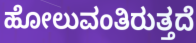
ಹೋಲುವಂತಿರುತ್ತದೆ